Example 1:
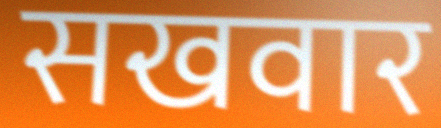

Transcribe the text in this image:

सखवार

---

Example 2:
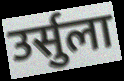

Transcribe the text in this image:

उर्सुला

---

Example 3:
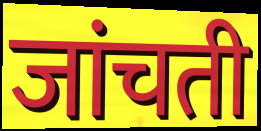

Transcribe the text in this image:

जांचती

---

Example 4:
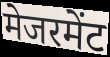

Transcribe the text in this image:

मेजरमेंट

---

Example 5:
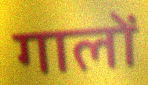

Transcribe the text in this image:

गालों